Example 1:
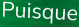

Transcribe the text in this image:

Puisque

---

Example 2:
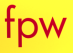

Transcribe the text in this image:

fpw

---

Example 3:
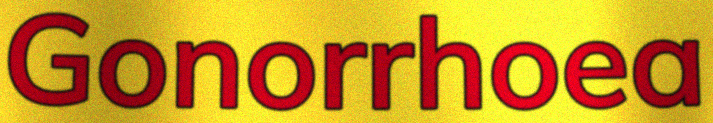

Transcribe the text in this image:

Gonorrhoea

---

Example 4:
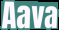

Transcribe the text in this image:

Aava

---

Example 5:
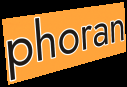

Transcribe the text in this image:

phoran